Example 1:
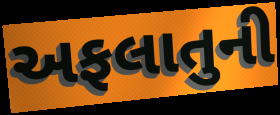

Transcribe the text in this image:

અફલાતુની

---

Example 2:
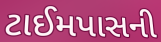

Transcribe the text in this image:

ટાઈમપાસની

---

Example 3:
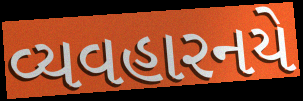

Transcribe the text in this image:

વ્યવહારનયે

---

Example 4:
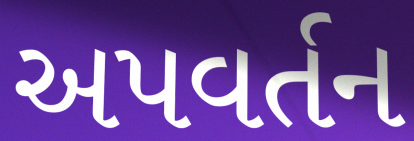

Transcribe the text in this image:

અપવર્તન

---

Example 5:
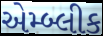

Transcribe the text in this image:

એમ્બ્લીક